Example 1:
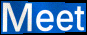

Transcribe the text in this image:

Meet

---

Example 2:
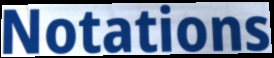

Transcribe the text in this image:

Notations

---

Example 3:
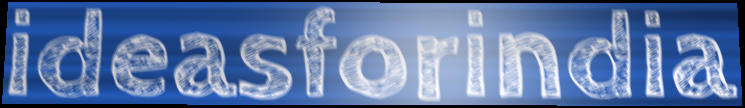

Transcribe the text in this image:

ideasforindia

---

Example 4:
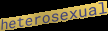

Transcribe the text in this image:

heterosexual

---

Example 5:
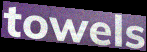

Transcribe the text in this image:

towels